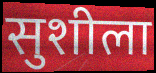
सुशीला